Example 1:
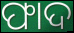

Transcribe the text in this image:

ଫାଦ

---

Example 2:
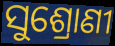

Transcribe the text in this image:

ସୁଶ୍ରୋଣୀ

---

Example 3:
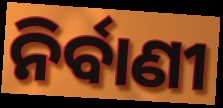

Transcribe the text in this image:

ନିର୍ବାଣୀ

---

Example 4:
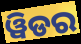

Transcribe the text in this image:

ୱିଡର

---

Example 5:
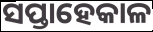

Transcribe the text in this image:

ସପ୍ତାହେକାଳ